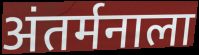
अंतर्मनाला